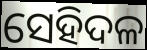
ସେହିଦଳ